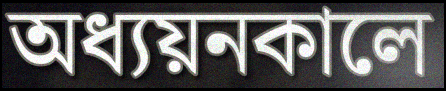
অধ্যয়নকালে